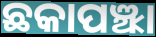
ଛକାପଞ୍ଝା